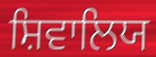
ਸ਼ਿਵਾਲਿਯ